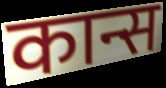
कान्‍स